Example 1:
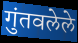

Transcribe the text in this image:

गुंतवलेले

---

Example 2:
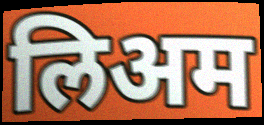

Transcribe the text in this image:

लिअम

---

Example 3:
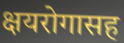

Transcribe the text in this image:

क्षयरोगासह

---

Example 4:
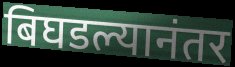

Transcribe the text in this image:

बिघडल्यानंतर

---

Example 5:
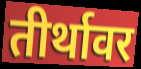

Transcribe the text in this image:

तीर्थावर